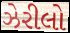
ઝેરીલો